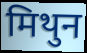
मिथुन